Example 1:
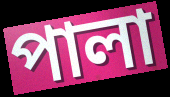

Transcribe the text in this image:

পালা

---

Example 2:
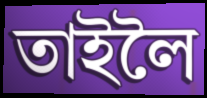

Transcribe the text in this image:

তাইলৈ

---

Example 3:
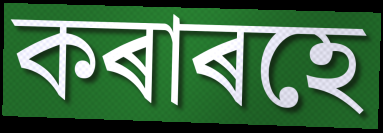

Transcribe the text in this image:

কৰাৰহে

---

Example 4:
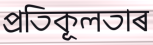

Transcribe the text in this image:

প্ৰতিকূলতাৰ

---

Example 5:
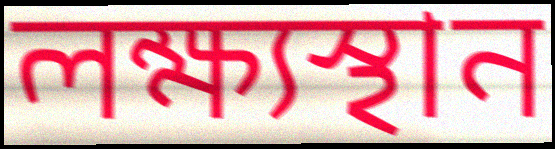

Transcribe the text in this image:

লক্ষ্যস্থান